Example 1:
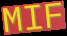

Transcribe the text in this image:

MIF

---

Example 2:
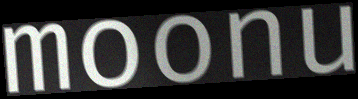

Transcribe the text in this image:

moonu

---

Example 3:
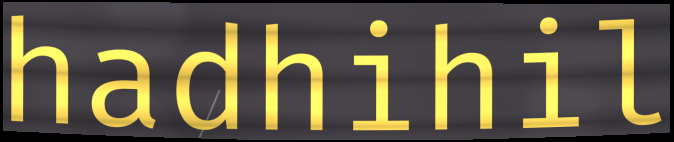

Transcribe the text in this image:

hadhihil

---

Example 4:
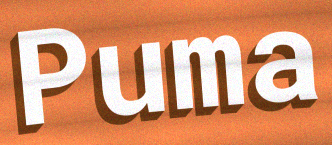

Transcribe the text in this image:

Puma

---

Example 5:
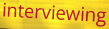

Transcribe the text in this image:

interviewing